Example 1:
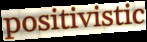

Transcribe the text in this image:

positivistic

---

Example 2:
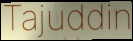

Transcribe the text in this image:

Tajuddin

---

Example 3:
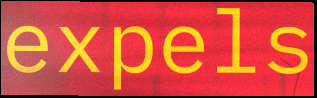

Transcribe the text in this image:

expels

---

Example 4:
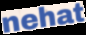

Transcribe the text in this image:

nehat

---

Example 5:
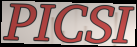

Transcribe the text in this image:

PICSI